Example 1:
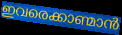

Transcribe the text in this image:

ഇവരെക്കാണ്മാൻ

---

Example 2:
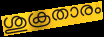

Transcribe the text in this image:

ശുക്രതാരം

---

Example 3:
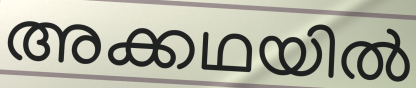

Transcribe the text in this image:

അക്കഥയിൽ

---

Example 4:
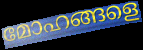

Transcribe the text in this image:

മോഹങ്ങളെ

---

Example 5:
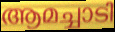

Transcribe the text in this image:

ആമച്ചാടി